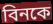
বিনকে